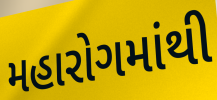
મહારોગમાંથી